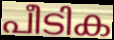
പീടിക